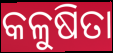
କଳୁଷିତା